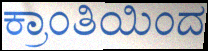
ಕ್ರಾಂತಿಯಿಂದ